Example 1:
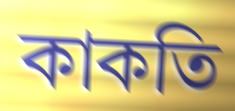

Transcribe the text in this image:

কাকতি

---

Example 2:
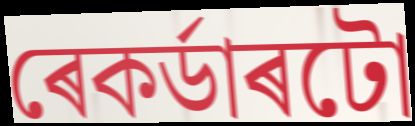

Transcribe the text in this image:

ৰেকৰ্ডাৰটো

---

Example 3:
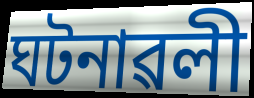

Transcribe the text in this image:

ঘটনাৱলী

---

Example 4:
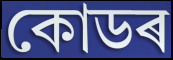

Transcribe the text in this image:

কোডৰ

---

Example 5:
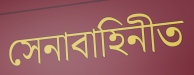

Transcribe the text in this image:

সেনাবাহিনীত